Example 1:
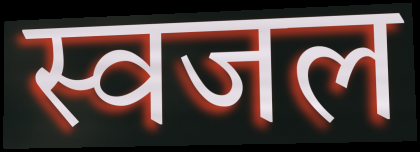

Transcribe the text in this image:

स्वजल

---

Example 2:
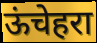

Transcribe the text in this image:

ऊंचेहरा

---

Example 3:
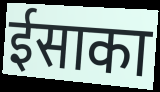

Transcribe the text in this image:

ईसाका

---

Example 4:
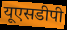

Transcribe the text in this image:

यूएसडीपी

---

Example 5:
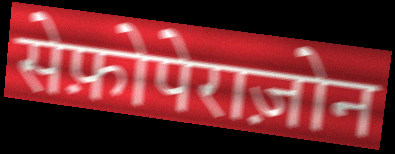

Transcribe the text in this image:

सेफ़ोपेराज़ोन